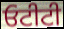
ਓਟੀਟੀ